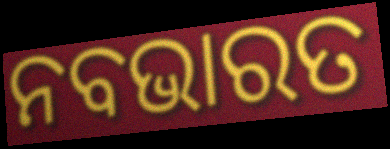
ନବଭାରତ